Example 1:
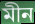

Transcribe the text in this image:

মীন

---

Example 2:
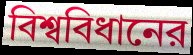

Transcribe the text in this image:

বিশ্ববিধানের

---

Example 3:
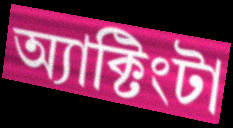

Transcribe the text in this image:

অ্যাক্টিংটা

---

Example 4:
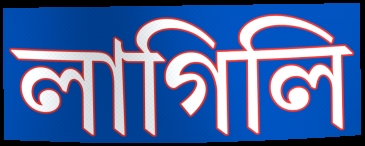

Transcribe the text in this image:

লাগিলি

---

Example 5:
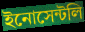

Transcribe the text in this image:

ইনোসেন্টলি